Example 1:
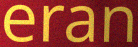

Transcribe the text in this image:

eran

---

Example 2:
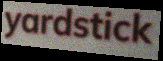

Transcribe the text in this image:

yardstick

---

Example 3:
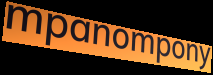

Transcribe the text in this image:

mpanompony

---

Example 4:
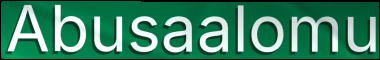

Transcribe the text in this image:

Abusaalomu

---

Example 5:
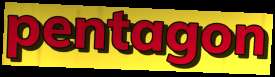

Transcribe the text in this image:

pentagon